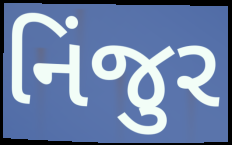
નિંજુર